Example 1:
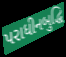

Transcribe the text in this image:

પરાધીનબુદ્ધિ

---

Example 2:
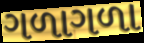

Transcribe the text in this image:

ગળાગળા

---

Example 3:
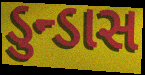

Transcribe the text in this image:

ડુન્ડાસ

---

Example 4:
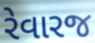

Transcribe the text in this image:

રેવારજ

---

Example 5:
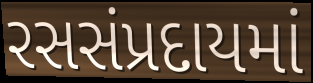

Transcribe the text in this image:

રસસંપ્રદાયમાં